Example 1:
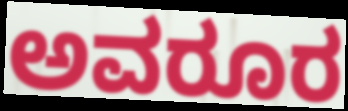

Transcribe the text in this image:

ಅವರೂರ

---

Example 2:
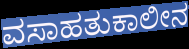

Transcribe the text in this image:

ವಸಾಹತುಕಾಲೀನ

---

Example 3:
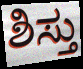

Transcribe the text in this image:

ಶಿಸ್ತು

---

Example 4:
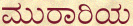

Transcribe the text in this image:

ಮುರಾರಿಯ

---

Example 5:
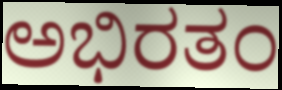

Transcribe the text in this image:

ಅಭಿರತಂ